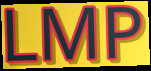
LMP